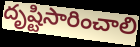
దృష్టిసారించాలి